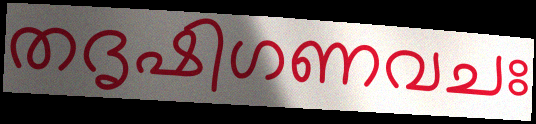
തദൃഷിഗണവചഃ